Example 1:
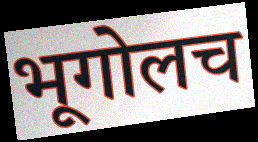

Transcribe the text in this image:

भूगोलच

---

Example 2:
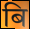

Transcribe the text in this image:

बि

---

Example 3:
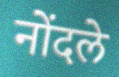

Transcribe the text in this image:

नोंदले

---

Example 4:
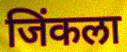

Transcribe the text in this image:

जिंकला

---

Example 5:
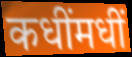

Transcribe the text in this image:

कधींमधीं